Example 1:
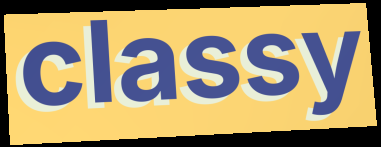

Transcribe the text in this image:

classy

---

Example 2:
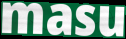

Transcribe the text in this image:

masu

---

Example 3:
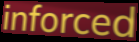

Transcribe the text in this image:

inforced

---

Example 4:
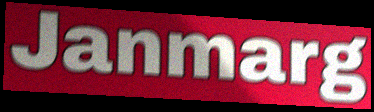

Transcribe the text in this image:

Janmarg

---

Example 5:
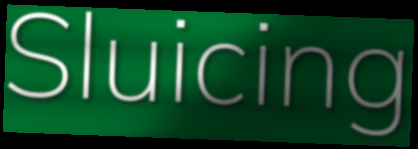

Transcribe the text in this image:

Sluicing